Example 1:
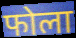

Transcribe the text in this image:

फोला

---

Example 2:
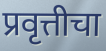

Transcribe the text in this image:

प्रवृत्तीचा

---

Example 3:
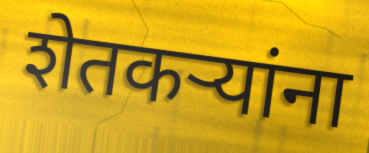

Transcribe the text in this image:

शेतकर्‍यांना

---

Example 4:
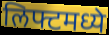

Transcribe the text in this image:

लिफ्टमध्ये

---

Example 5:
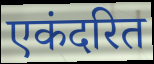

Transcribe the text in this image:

एकंदरित